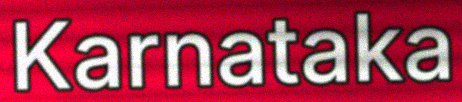
Karnataka